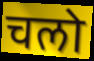
चलो